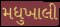
મધુખાલી